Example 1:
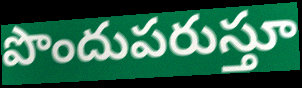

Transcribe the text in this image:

పొందుపరుస్తూ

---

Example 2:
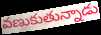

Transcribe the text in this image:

వణుకుతున్నాడు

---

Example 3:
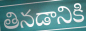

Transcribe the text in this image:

తినడానికి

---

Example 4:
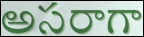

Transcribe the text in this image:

అసరాగా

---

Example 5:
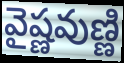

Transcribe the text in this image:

వైష్ణవుణ్ణి